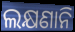
ଲକ୍ଷଣାନି